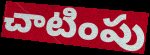
చాటింపు